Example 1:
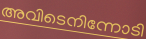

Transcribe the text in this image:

അവിടെനിന്നോടി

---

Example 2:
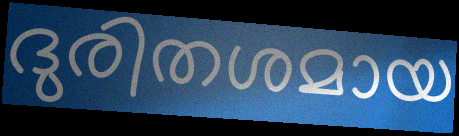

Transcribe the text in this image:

ദുരിതശമായ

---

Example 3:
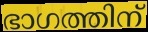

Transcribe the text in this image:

ഭാഗത്തിന്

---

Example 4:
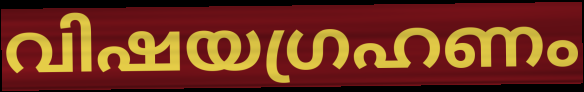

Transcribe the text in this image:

വിഷയഗ്രഹണം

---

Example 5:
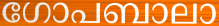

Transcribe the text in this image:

ഗോപബാലാ